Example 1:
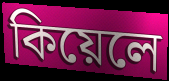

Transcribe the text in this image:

কিয়েলে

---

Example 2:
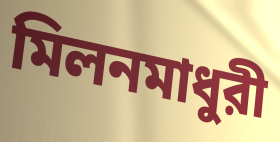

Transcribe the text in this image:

মিলনমাধুরী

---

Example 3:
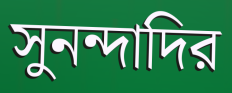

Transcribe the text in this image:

সুনন্দাদির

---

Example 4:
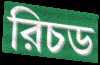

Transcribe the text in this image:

রিচড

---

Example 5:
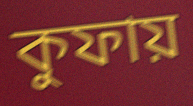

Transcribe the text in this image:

কুফায়